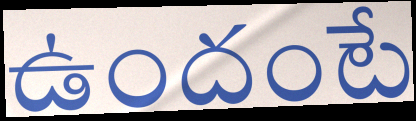
ఉందంటే